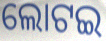
ଲୋଟଇ